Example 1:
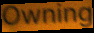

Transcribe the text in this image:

Owning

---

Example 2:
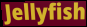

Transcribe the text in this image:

Jellyfish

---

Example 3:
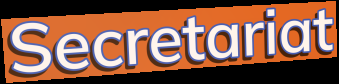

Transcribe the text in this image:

Secretariat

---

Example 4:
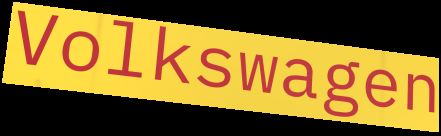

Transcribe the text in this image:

Volkswagen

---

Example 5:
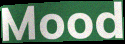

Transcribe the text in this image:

Mood